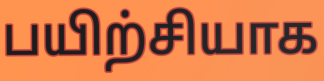
பயிற்சியாக